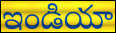
ఇండియా